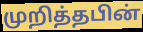
முறித்தபின்